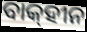
ବାକ୍‌ହୀନ